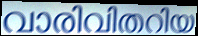
വാരിവിതറിയ